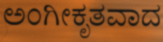
ಅಂಗೀಕೃತವಾದ